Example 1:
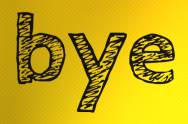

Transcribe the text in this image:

bye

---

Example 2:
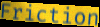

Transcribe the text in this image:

Friction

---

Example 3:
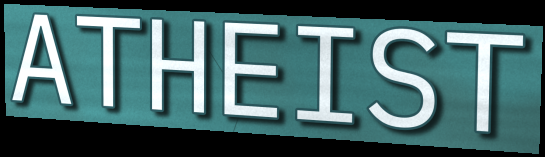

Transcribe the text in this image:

ATHEIST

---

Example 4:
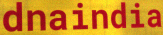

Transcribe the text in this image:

dnaindia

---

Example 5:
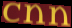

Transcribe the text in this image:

cnn